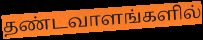
தண்டவாளங்களில்